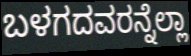
ಬಳಗದವರನ್ನೆಲ್ಲಾ